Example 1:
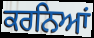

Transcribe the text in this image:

ਕਰਨਿਆਂ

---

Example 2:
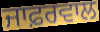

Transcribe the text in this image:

ਜਾਫ਼ਰਵਾਲ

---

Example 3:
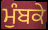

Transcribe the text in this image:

ਮੁੰਬਕੇ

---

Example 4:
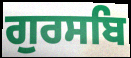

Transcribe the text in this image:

ਗੁਰਸਬਿ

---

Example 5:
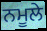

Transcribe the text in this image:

ਨਮੂਲੇ